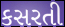
કસરતી